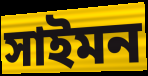
সাইমন